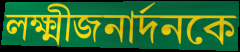
লক্ষ্মীজনার্দনকে